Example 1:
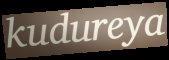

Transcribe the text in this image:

kudureya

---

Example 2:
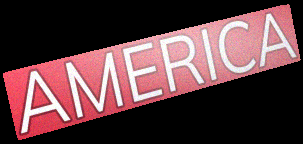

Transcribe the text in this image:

AMERICA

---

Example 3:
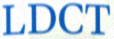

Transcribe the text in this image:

LDCT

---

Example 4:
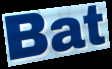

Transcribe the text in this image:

Bat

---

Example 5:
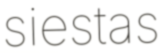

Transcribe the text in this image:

siestas